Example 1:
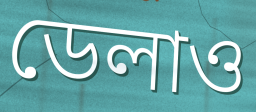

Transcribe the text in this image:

ডেলাও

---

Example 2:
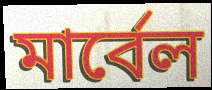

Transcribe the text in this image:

মার্বেল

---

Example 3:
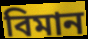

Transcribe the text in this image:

বিমান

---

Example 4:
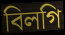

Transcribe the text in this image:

বিলগি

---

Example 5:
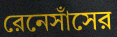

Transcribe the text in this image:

রেনেসাঁসের